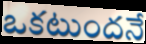
ఒకటుందనే